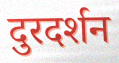
दुरदर्शन